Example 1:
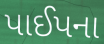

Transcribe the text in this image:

પાઈપના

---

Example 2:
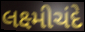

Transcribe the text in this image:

લક્ષ્મીચંદે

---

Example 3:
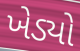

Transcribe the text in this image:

ખેડ્યો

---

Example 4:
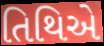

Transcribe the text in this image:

તિથિએ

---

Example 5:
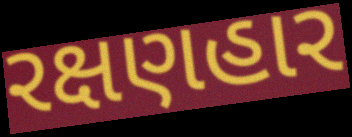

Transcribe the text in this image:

રક્ષણહાર